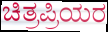
ಚಿತ್ರಪ್ರಿಯರ